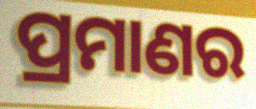
ପ୍ରମାଣର